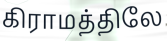
கிராமத்திலே